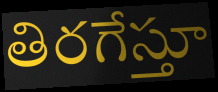
తిరగేస్తూ